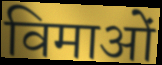
विमाओं